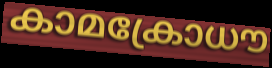
കാമക്രോധൗ